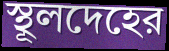
স্থূলদেহের